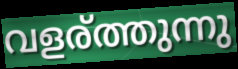
വളര്ത്തുന്നു